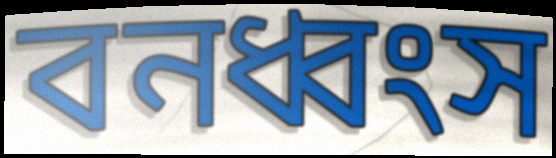
বনধ্বংস